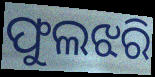
ଫୁଲଝରି